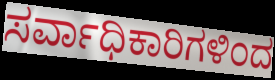
ಸರ್ವಾಧಿಕಾರಿಗಳಿಂದ